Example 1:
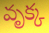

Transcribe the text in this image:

వృక్క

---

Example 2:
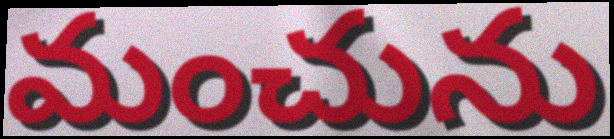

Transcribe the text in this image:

మంచును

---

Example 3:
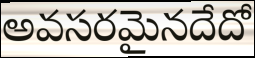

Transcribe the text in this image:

అవసరమైనదేదో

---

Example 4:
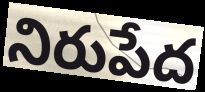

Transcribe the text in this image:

నిరుపేద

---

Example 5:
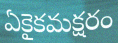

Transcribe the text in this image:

ఏకైకమక్షరం